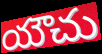
యౌచు